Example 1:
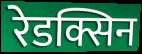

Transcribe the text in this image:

रेडक्सिन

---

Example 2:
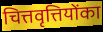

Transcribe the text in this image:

चित्तवृत्तियोंका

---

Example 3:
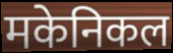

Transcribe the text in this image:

मकेनिकल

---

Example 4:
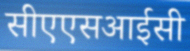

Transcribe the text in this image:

सीएएसआईसी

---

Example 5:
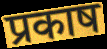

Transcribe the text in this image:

प्रकाष